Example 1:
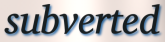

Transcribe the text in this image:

subverted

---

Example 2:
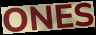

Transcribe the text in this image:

ONES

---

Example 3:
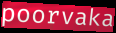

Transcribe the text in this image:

poorvaka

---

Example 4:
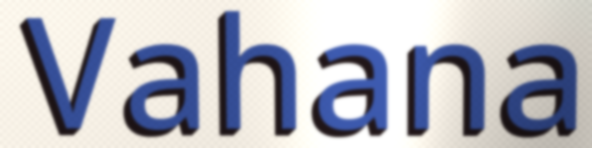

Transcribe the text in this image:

Vahana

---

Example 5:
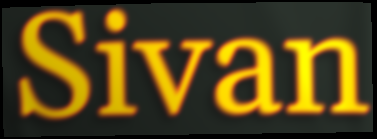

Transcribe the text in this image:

Sivan